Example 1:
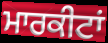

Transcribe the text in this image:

ਮਾਰਕੀਟਾਂ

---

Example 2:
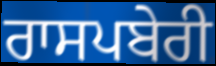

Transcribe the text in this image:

ਰਾਸਪਬੇਰੀ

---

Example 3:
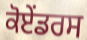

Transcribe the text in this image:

ਕੋਏਂਡਰਸ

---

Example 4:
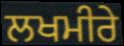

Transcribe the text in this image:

ਲਖਮੀਰੇ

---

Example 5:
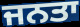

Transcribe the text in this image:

ਜਨਤਾ